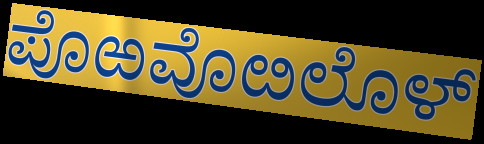
ಪೊಱವೊೞಲೊಳ್